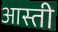
आस्ती